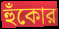
হুঁকোর